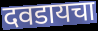
दवडायचा